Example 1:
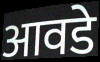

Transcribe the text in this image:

आवडे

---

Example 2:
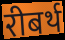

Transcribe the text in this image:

रीबर्थ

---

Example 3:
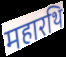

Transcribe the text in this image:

महारथि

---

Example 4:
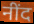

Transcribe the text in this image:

नींद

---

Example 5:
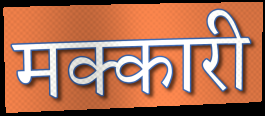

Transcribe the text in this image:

मक्कारी